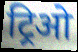
ट्रिओ